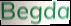
Begda